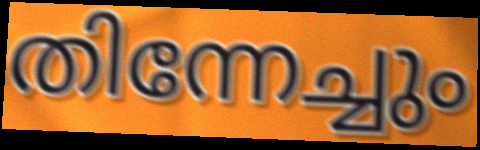
തിന്നേച്ചും